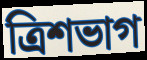
ত্রিশভাগ